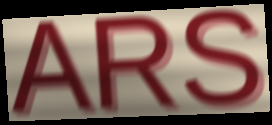
ARS